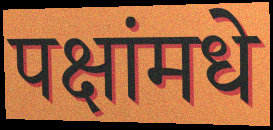
पक्षांमधे